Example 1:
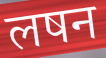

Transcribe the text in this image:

लषन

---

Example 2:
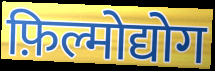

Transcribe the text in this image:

फ़िल्मोद्योग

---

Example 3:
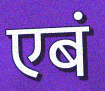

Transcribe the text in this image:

एबं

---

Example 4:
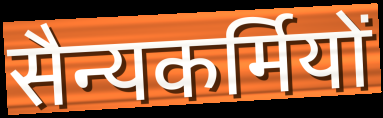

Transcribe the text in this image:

सैन्यकर्मियों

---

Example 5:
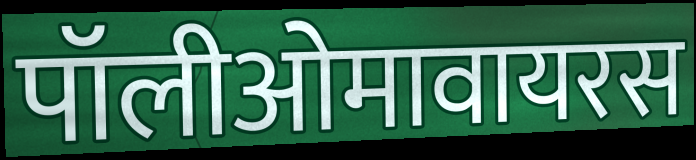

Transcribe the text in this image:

पॉलीओमावायरस